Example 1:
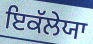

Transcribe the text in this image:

ਇਕੱਲੇਯਾ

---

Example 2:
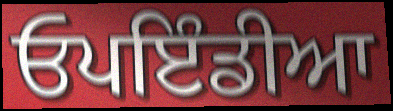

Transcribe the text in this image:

ਓਪਇੰਡੀਆ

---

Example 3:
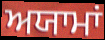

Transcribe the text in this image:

ਅਯਾਮਾਂ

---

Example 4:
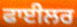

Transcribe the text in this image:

ਫਾਈਲਰ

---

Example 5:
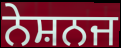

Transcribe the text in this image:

ਨੇਸ਼ਨਜ